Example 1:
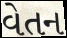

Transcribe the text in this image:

વેતન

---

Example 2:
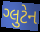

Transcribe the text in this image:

ગ્લુટેન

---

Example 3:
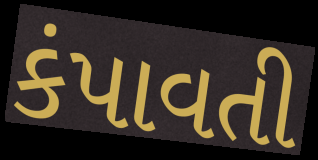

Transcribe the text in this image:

કંપાવતી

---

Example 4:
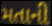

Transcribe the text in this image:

મતાની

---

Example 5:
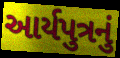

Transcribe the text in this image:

આર્યપુત્રનું